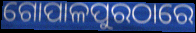
ଗୋପାଳପୁରଠାରେ